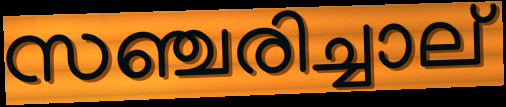
സഞ്ചരിച്ചാല്